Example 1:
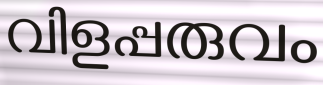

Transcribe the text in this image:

വിളപ്പരുവം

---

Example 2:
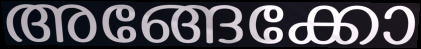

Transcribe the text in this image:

അങ്ങേക്കോ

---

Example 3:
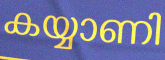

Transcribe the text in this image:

കയ്യാണി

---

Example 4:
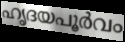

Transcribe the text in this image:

ഹൃദയപൂർവം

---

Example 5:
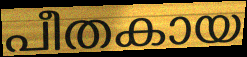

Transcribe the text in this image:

പീതകായ